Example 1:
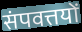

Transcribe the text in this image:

संपवत्तयों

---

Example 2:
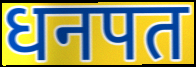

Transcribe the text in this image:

धनपत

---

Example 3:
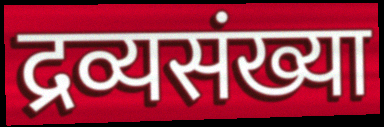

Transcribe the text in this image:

द्रव्यसंख्या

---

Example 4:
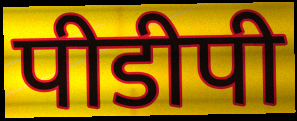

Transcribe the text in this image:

पीडीपी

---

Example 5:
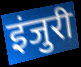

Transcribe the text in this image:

इंजुरी